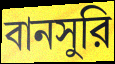
বানসুরি